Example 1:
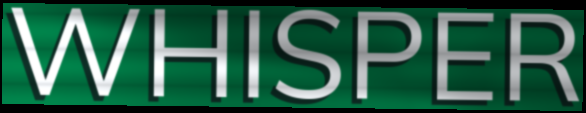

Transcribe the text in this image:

WHISPER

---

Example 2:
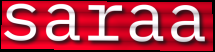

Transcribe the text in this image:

saraa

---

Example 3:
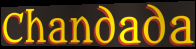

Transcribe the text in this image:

Chandada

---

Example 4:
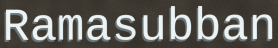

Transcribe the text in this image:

Ramasubban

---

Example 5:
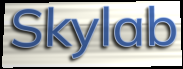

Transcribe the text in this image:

Skylab